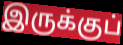
இருக்குப்